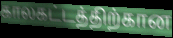
காலகட்டத்திற்கான